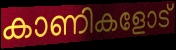
കാണികളോട്